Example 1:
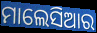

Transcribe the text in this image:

ମାଲେସିଆର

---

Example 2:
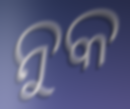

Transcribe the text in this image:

ନୁକ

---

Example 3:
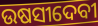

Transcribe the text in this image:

ଉଷସୀଦେବୀ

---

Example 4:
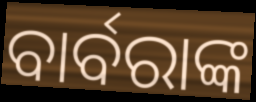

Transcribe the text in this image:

ବାର୍ବରାଙ୍କ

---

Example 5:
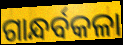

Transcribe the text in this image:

ଗାନ୍ଧର୍ବକଳା